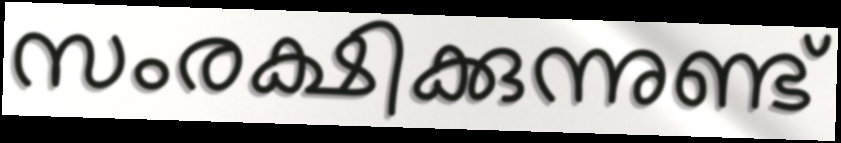
സംരക്ഷിക്കുന്നുണ്ട്